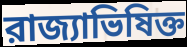
রাজ্যাভিষিক্ত